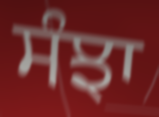
ਸੰਝਾ